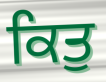
ਕਿਤੁ